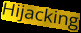
Hijacking